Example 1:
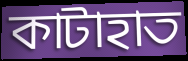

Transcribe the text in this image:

কাটাহাত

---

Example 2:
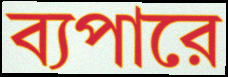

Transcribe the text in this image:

ব্যপারে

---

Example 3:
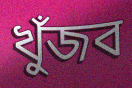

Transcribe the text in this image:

খুঁজব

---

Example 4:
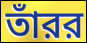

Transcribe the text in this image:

তাঁরর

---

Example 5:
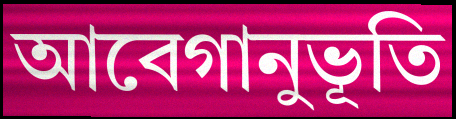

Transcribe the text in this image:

আবেগানুভূতি